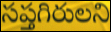
సప్తగిరులని